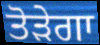
ਤੋੜੇਗਾ